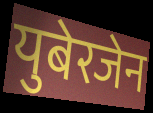
युबेरजेन